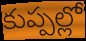
కుప్పల్లో